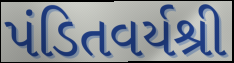
પંડિતવર્યશ્રી